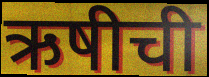
ऋषीची